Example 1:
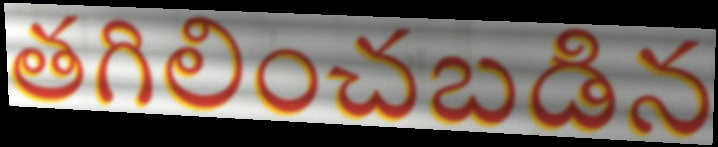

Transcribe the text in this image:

తగిలించబడిన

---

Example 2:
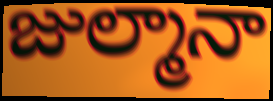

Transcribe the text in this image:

జుల్మానా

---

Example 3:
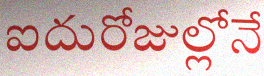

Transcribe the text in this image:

ఐదురోజుల్లోనే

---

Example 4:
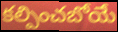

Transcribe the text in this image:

కల్పించబోయే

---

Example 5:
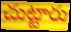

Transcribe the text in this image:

చుట్టారు